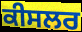
ਕੀਸਲਰ